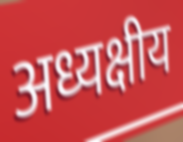
अध्यक्षीय